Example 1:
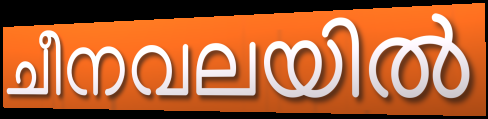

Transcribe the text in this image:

ചീനവലയിൽ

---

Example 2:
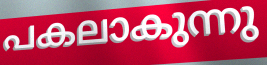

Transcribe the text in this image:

പകലാകുന്നു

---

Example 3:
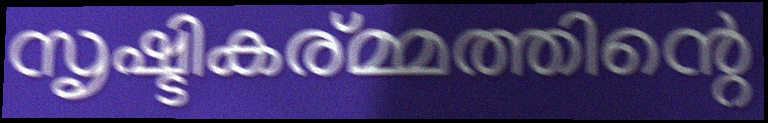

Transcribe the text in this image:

സൃഷ്ടികര്മ്മത്തിന്റെ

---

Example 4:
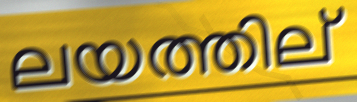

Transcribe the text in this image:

ലയത്തില്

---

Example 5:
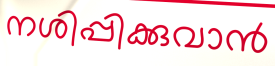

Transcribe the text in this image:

നശിപ്പിക്കുവാൻ